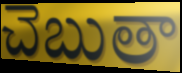
చెబుతా